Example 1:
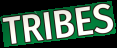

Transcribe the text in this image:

TRIBES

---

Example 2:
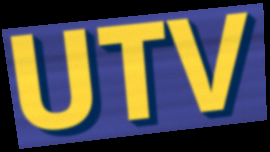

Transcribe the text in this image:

UTV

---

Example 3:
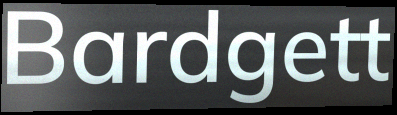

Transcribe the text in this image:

Bardgett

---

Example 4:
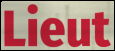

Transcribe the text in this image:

Lieut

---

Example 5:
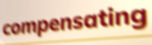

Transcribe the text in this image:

compensating